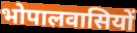
भोपालवासियों